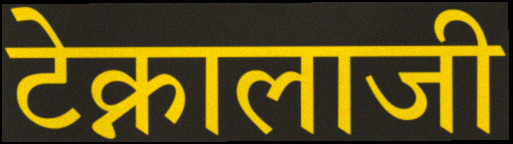
टेक्नालाजी